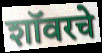
शॉवरचे